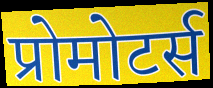
प्रोमोटर्स